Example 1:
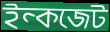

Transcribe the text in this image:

ইন্কজেট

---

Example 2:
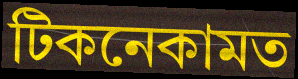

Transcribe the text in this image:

টিকনেকামত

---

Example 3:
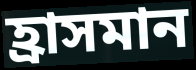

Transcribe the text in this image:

হ্ৰাসমান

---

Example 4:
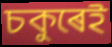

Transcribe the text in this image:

চকুৰেই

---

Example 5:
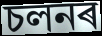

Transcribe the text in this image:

চলনৰ